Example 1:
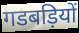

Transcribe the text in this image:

गडबड़ियों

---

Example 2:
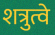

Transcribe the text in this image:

शत्रुत्वे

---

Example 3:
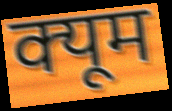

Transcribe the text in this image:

क्यूम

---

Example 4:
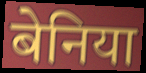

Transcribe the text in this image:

बेनिया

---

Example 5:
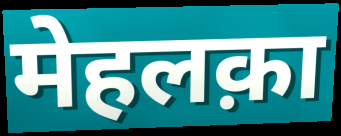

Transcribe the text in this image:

मेहलक़ा